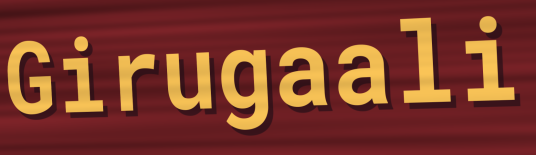
Girugaali